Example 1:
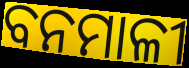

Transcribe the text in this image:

ବନମାଳୀ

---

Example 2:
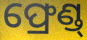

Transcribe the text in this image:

ଫ୍ରେଣ୍ଡ୍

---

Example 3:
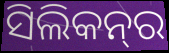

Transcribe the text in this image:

ସିଲିକନ୍‌ର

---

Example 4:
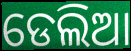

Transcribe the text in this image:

ଡେଲିଆ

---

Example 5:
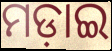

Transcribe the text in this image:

ମଡ଼ାଇ